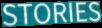
STORIES